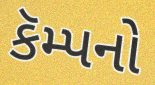
કૅમ્પનો